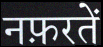
नफ़रतें